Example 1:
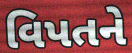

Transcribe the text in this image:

વિપતને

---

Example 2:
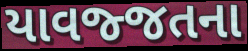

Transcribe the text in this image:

યાવજ્જતના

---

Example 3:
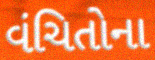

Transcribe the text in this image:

વંચિતોના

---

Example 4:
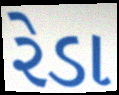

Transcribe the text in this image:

રેડા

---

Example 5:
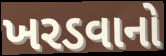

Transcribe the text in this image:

ખરડવાનો